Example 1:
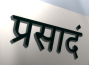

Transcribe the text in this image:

प्रसादं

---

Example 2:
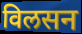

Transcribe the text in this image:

विलसन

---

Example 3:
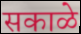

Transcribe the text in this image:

सकाळे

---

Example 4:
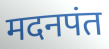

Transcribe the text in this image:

मदनपंत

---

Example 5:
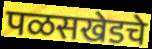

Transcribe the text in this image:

पळसखेडचे